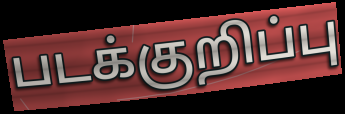
படக்குறிப்பு